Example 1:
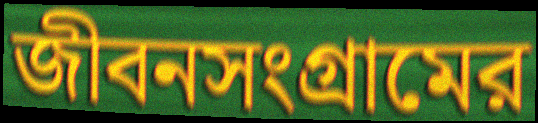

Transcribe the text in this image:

জীবনসংগ্রামের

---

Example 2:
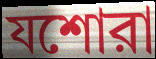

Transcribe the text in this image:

যশোরা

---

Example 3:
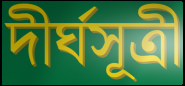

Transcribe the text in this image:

দীর্ঘসূত্রী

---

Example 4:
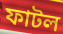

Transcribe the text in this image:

ফাটল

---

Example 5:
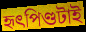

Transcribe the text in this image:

হৃৎপিণ্ডটাই